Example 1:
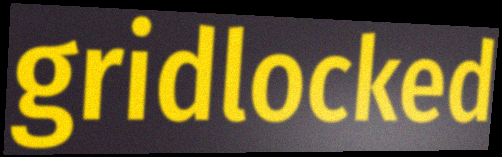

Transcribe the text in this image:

gridlocked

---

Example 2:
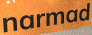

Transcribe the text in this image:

narmad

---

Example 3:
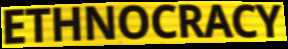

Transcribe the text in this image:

ETHNOCRACY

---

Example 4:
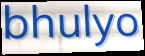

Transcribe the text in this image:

bhulyo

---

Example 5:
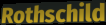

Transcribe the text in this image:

Rothschild